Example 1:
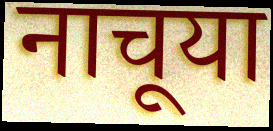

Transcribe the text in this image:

नाचूया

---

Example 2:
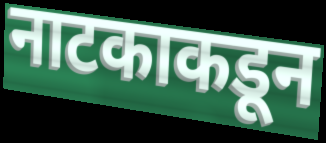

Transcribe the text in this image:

नाटकाकडून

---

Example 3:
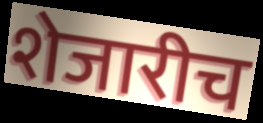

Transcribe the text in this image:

शेजारीच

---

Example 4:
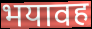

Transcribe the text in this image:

भयावह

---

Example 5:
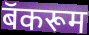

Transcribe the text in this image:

बॅकरूम